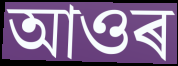
আওৰ